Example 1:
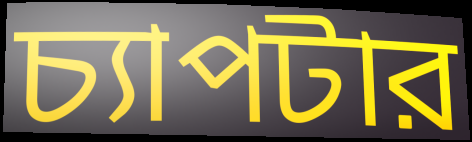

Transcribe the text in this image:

চ্যাপটার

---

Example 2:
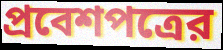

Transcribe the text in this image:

প্রবেশপত্রের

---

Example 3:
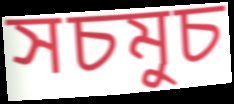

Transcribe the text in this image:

সচমুচ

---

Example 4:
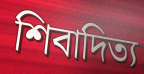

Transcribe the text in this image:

শিবাদিত্য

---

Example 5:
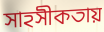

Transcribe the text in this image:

সাহসীকতায়